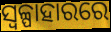
ସ୍ୱଳ୍ପାହାରରେ